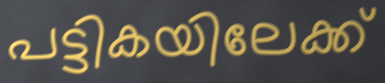
പട്ടികയിലേക്ക്